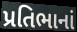
પ્રતિભાનાં